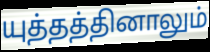
யுத்தத்தினாலும்